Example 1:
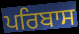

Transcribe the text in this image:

ਪਰਿਬਾਸ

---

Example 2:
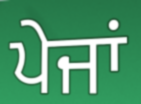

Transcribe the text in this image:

ਪੇਜਾਂ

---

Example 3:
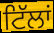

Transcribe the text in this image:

ਟਿੱਲਾਂ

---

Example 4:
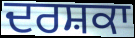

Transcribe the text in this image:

ਦਰਸ਼ਕਾ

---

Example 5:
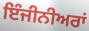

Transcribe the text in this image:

ਇੰਜੀਨੀਅਰਾਂ